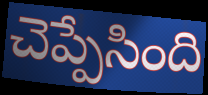
చెప్పేసింది